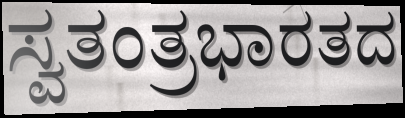
ಸ್ವತಂತ್ರಭಾರತದ